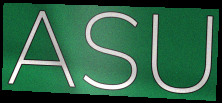
ASU